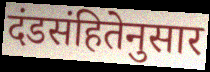
दंडसंहितेनुसार